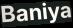
Baniya